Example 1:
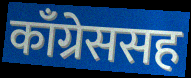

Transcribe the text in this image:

काँग्रेससह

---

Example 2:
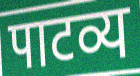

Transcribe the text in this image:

पाटव्य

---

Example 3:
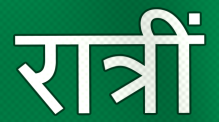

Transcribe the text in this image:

रात्रीं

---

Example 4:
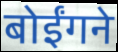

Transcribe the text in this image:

बोईंगने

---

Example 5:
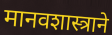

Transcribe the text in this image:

मानवशास्त्राने